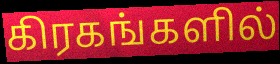
கிரகங்களில்